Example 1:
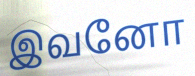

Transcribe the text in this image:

இவனோ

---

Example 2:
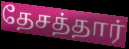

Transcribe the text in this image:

தேசத்தார்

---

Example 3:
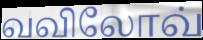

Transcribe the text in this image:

வவிலோவ்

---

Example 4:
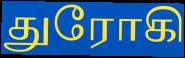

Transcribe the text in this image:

துரோகி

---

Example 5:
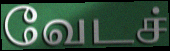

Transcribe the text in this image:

வேடச்